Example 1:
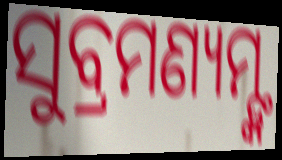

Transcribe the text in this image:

ସୁବ୍ରମଣ୍ୟମ୍ଙ୍କ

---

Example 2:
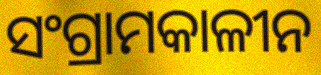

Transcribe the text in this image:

ସଂଗ୍ରାମକାଳୀନ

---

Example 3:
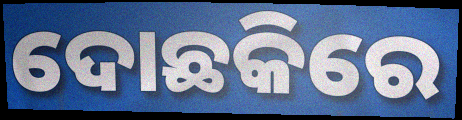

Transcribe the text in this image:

ଦୋଛକିରେ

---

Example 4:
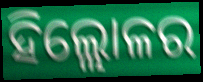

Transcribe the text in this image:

ହିଲ୍ଲୋଳର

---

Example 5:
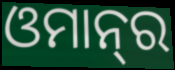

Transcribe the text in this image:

ଓମାନ୍‌ର